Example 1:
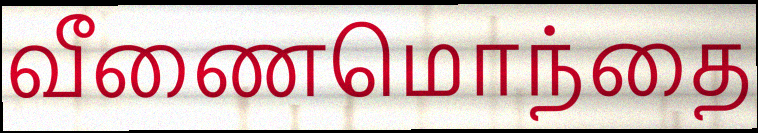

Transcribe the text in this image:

வீணைமொந்தை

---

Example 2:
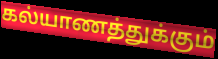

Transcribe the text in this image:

கல்யாணத்துக்கும்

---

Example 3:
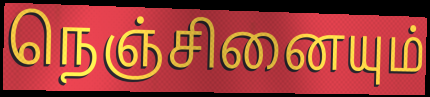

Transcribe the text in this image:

நெஞ்சினையும்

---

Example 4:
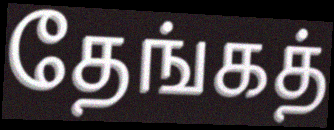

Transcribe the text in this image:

தேங்கத்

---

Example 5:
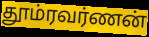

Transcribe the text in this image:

தூம்ரவர்ணன்